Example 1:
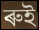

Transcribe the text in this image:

ৰুই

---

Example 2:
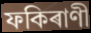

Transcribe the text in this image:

ফকিৰাণী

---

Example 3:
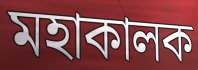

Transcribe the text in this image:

মহাকালক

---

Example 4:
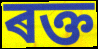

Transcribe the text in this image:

ৰক্ত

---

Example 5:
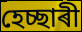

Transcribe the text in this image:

হেচ্ছাৰী